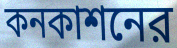
কনকাশনের